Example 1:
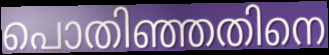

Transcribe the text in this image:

പൊതിഞ്ഞതിനെ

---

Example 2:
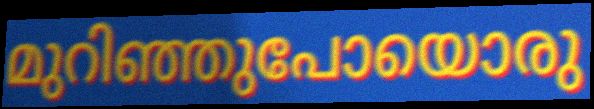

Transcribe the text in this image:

മുറിഞ്ഞുപോയൊരു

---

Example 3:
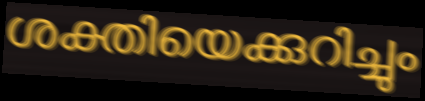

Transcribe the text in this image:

ശക്തിയെക്കുറിച്ചും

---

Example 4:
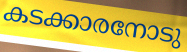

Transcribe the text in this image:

കടക്കാരനോടു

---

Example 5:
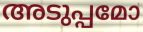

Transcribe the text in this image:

അടുപ്പമോ